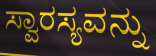
ಸ್ವಾರಸ್ಯವನ್ನು